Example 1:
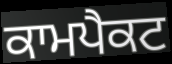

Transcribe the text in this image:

ਕਾਮਪੈਕਟ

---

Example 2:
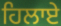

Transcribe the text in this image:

ਹਿਲਾਏ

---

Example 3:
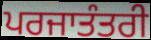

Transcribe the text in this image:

ਪਰਜਾਤੰਤਰੀ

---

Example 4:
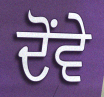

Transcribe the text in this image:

ਦੋਂਵੇ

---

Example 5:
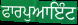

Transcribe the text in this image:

ਫਾਰਪੁਆਇੰਟ